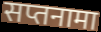
सप्तनामा